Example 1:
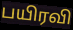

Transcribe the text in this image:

பயிரவி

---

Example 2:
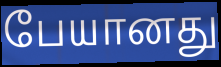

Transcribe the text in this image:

பேயானது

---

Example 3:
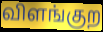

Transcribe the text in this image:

விளங்குற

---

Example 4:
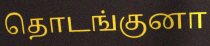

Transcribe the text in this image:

தொடங்குனா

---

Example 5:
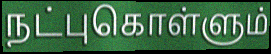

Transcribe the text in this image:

நட்புகொள்ளும்